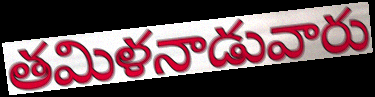
తమిళనాడువారు